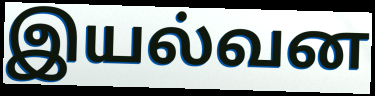
இயல்வன